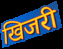
खिजरी